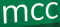
mcc